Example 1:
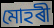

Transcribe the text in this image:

মোহৰী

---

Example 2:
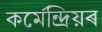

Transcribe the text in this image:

কৰ্মেন্দ্ৰিয়ৰ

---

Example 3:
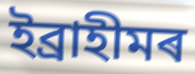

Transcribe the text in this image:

ইব্ৰাহীমৰ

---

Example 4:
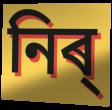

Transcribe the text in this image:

নিৰ্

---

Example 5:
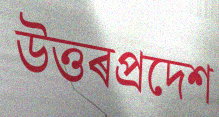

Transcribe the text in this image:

উত্তৰপ্ৰদেশ